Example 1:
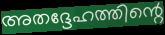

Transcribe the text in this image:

അതദ്ദേഹത്തിന്റെ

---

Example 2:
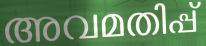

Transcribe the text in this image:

അവമതിപ്പ്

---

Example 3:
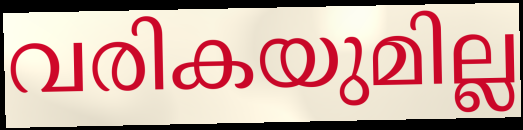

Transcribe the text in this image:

വരികയുമില്ല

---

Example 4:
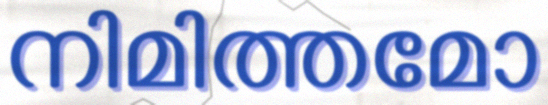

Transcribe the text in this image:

നിമിത്തമോ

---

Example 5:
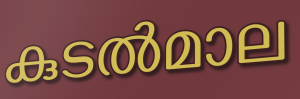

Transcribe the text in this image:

കുടൽമാല